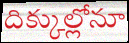
దిక్కుల్లోనూ